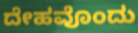
ದೇಹವೊಂದು